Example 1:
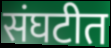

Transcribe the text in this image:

संघटीत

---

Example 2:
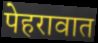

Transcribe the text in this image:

पेहरावात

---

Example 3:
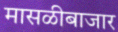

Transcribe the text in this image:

मासळीबाजार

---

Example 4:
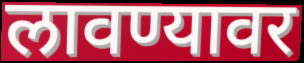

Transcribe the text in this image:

लावण्यावर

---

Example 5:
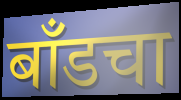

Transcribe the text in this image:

बाँडचा